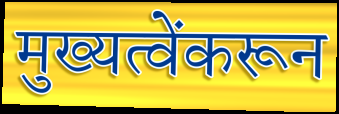
मुख्यत्वेंकरून